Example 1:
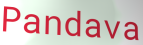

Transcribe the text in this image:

Pandava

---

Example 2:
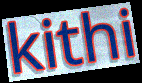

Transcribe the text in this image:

kithi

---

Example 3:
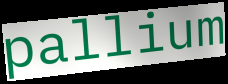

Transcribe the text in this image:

pallium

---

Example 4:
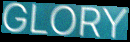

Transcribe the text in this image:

GLORY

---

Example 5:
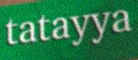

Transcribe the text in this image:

tatayya